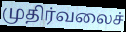
முதிர்வலைச்